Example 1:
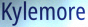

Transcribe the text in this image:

Kylemore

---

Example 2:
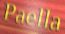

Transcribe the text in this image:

Paella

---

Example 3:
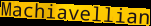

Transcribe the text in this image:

Machiavellian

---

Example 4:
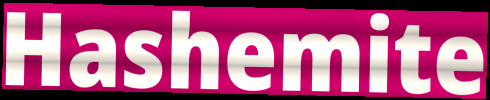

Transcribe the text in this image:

Hashemite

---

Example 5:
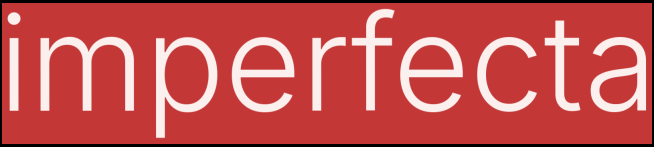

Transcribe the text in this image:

imperfecta